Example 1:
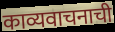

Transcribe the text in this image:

काव्यवाचनाची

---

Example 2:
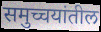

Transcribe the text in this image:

समुच्चयांतील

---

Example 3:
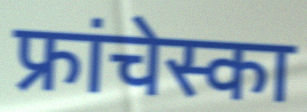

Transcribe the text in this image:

फ्रांचेस्का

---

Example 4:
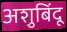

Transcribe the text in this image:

अश्रुबिंदू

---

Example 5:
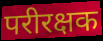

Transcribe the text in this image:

परीरक्षक